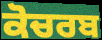
ਕੋਚਰਬ